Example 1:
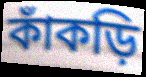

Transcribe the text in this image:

কাঁকড়ি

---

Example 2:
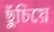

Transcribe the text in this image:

ছুঁচিয়ে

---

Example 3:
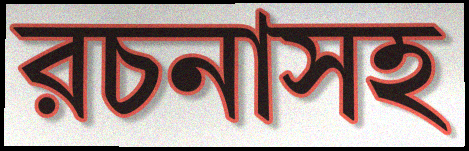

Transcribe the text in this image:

রচনাসহ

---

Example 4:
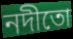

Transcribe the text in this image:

নদীতো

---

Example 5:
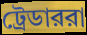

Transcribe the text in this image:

ট্রেডাররা